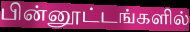
பின்னூட்டங்களில்